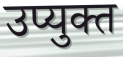
उप्युक्त